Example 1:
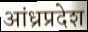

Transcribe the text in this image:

आंध्रप्रदेश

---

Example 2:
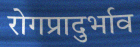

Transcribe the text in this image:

रोगप्रादुर्भाव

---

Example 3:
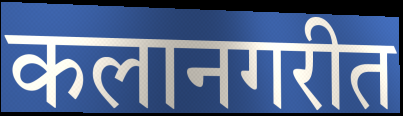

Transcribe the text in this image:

कलानगरीत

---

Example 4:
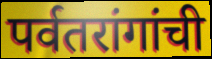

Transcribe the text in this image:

पर्वतरांगांची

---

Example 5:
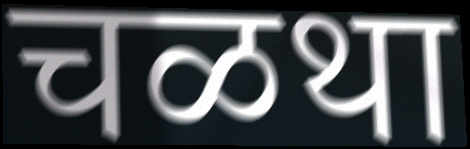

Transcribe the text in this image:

चळथा